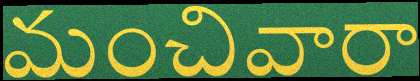
మంచివారా